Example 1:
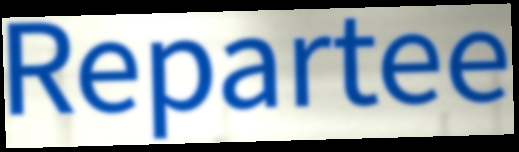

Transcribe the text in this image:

Repartee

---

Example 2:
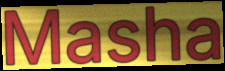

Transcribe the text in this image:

Masha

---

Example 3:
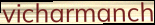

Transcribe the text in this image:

vicharmanch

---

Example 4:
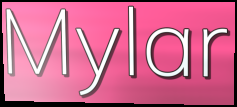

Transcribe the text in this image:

Mylar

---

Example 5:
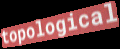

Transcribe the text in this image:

topological